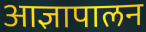
आज्ञापालन